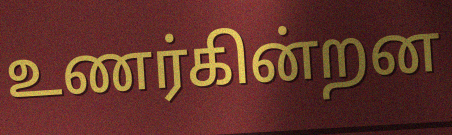
உணர்கின்றன